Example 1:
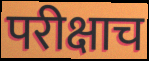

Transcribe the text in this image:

परीक्षाच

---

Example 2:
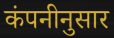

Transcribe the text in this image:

कंपनीनुसार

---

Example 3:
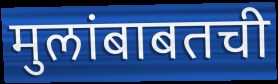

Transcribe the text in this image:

मुलांबाबतची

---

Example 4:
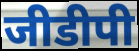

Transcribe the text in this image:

जीडीपी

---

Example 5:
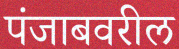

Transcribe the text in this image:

पंजाबवरील